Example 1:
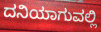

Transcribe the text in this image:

ದನಿಯಾಗುವಲ್ಲಿ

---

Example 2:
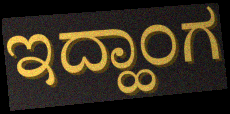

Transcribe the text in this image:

ಇದ್ಹಾಂಗ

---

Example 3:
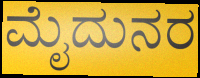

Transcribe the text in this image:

ಮೈದುನರ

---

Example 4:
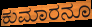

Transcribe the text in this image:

ಕುಮಾರನೂ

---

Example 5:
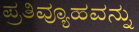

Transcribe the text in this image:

ಪ್ರತಿವ್ಯೂಹವನ್ನು